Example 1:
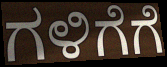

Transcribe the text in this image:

ಗಳಿಗೆಗೆ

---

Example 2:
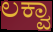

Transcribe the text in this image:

ಲಕ್ವಾ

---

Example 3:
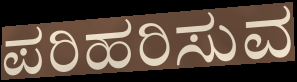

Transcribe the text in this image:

ಪರಿಹರಿಸುವ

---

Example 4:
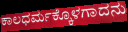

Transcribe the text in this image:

ಕಾಲಧರ್ಮಕ್ಕೊಳಗಾದನು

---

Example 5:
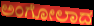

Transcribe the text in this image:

ಅಂಗೋಲಾದ